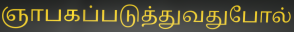
ஞாபகப்படுத்துவதுபோல்